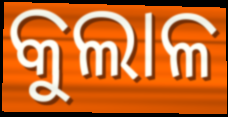
କୁଲାଳ